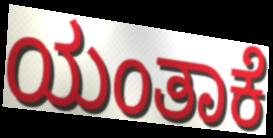
ಯಂತಾಕೆ